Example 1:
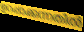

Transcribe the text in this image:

ഉറപ്പാക്കുന്നതിൽ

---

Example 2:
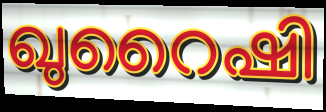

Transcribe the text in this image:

ഖുറൈഷി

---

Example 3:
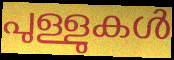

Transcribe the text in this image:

പുള്ളുകൾ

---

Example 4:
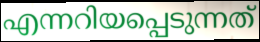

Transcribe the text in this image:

എന്നറിയപ്പെടുന്നത്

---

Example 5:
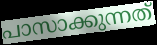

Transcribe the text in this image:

പാസാക്കുന്നത്